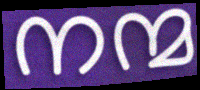
നന്മ